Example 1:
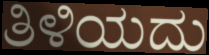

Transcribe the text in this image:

ತಿಳಿಯದು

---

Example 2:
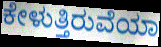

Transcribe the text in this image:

ಕೇಳುತ್ತಿರುವೆಯಾ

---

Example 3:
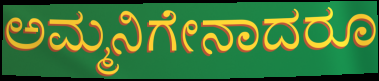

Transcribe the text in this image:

ಅಮ್ಮನಿಗೇನಾದರೂ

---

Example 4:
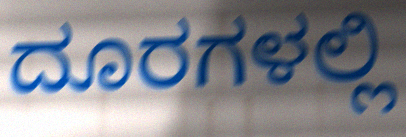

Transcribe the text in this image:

ದೂರಗಳಲ್ಲಿ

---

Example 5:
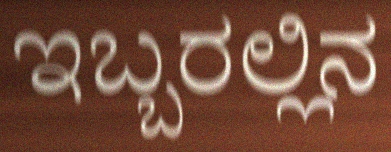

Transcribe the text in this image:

ಇಬ್ಬರಲ್ಲಿನ